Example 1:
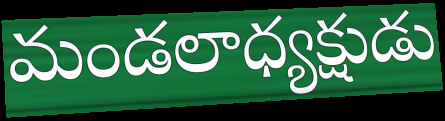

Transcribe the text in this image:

మండలాధ్యక్షుడు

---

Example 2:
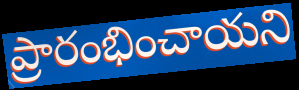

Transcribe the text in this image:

ప్రారంభించాయని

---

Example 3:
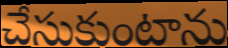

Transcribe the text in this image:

చేసుకుంటాను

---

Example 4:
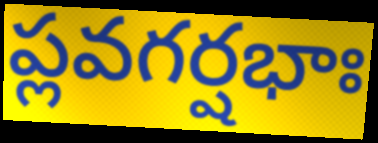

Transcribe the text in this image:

ప్లవగర్షభాః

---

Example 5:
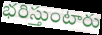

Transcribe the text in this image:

భరిస్తుంటారు